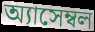
অ্যাসেম্বল